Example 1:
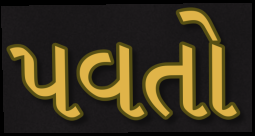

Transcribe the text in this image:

પવતો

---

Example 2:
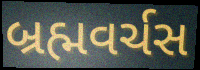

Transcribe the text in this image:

બ્રહ્મવર્ચસ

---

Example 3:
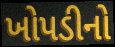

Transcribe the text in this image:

ખોપડીનો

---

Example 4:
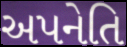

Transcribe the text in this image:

અપનેતિ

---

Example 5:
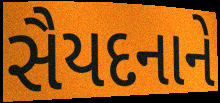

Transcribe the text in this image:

સૈયદનાને